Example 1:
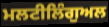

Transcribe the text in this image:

ਮਲਟੀਲਿੰਗੁਅਲ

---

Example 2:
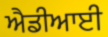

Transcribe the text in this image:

ਐਡੀਆਈ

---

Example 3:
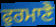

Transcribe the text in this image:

ਫੁਰਮਾਣੈ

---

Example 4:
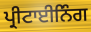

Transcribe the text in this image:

ਪ੍ਰੀਟਾਈਨਿੰਗ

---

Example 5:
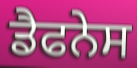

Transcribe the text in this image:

ਡੈਫਨੇਸ